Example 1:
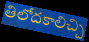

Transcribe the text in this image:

తిలోదకాలిచ్చి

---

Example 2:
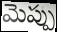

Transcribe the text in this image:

మెప్పు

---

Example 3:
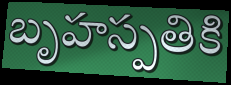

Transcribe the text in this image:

బృహస్పతికి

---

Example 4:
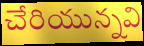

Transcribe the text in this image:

చేరియున్నవి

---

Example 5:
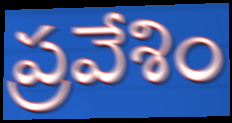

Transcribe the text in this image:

ప్రవేశిం